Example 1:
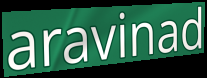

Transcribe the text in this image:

aravinad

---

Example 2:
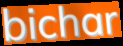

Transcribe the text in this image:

bichar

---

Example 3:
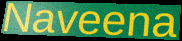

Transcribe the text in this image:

Naveena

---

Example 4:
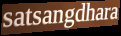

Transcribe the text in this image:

satsangdhara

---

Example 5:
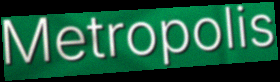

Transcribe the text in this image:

Metropolis